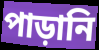
পাড়ানি